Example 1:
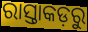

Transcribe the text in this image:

ରାସ୍ତାକଡ଼ରୁ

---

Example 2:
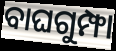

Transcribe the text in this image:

ବାଘଗୁମ୍ଫା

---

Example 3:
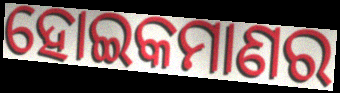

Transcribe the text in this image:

ହୋଇକମାଣର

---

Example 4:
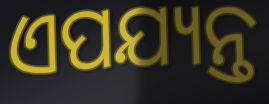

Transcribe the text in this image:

ଏପଯ୍ୟନ୍ତ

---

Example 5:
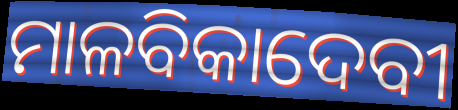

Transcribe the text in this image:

ମାଳବିକାଦେବୀ